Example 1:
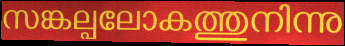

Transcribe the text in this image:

സങ്കല്പലോകത്തുനിന്നു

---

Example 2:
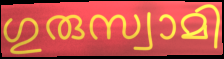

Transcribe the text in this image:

ഗുരുസ്വാമി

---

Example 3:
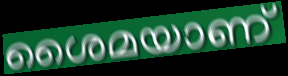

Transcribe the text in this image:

ശൈമയാണ്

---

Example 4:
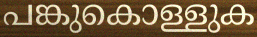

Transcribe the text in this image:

പങ്കുകൊള്ളുക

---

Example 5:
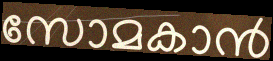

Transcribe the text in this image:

സോമകാൻ